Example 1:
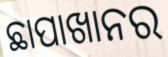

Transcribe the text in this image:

ଛାପାଖାନର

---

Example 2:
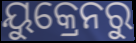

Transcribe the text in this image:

ୟୁକ୍ରେନରୁ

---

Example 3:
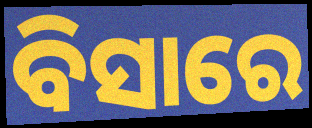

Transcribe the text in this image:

ବିସାରେ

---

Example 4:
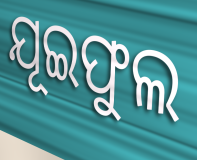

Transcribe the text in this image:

ଯୂଇଫୁଲ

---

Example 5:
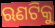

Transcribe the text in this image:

ଋଣଟିକୁ